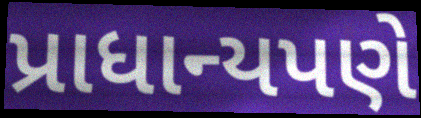
પ્રાધાન્યપણે